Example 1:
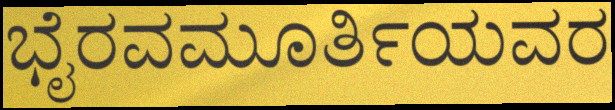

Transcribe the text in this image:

ಭೈರವಮೂರ್ತಿಯವರ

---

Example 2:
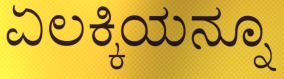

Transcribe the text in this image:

ಏಲಕ್ಕಿಯನ್ನೂ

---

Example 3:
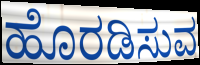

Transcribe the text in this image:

ಹೊರಡಿಸುವ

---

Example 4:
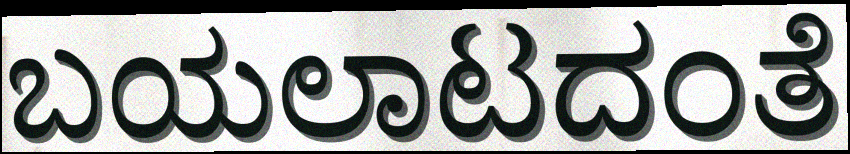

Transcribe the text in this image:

ಬಯಲಾಟದಂತೆ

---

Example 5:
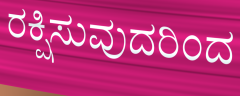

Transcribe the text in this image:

ರಕ್ಷಿಸುವುದರಿಂದ